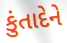
કુંતાદેને